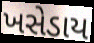
ખસેડાય